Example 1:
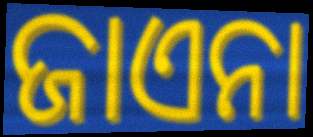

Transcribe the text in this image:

ଜାଏନା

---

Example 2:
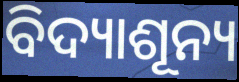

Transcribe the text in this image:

ବିଦ୍ୟାଶୂନ୍ୟ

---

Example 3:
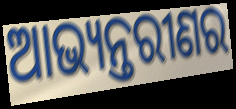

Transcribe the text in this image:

ଆଭ୍ୟନ୍ତରୀଣର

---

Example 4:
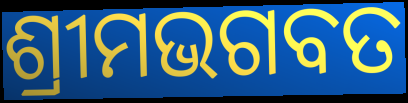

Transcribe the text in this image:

ଶ୍ରୀମଭଗବତ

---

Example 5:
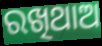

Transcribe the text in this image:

ରଖିଥାଅ